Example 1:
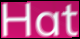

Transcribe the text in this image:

Hat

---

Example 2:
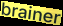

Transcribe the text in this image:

brainer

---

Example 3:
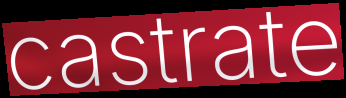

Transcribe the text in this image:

castrate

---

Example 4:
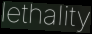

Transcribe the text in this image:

lethality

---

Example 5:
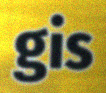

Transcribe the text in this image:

gis